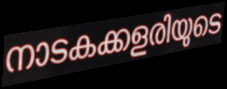
നാടകക്കളരിയുടെ